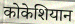
कोकेशियान